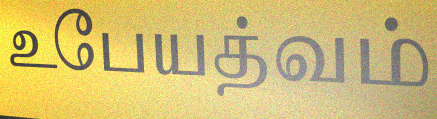
உபேயத்வம்